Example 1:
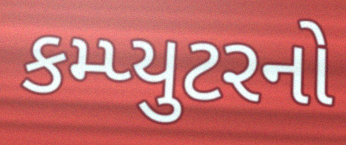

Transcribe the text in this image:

કમ્પ્યુટરનો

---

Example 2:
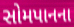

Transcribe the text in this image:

સોમપાનના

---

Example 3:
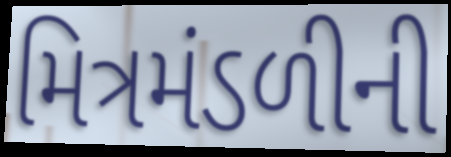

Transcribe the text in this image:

મિત્રમંડળીની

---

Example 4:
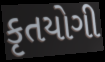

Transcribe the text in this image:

કૃતયોગી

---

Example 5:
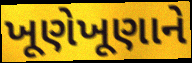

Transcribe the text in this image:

ખૂણેખૂણાને